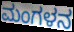
ಮಂಗಳನ